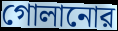
গোলানোর